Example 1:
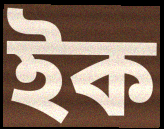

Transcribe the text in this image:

ইক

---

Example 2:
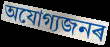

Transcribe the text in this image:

অযোগ্যজনৰ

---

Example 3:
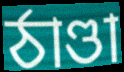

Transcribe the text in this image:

ঠাণ্ডা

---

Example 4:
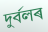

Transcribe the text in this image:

দুৰ্বলৰ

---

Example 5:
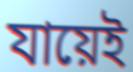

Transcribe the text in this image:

যায়েই